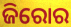
ଜିରୋର